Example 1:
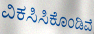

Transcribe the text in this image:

ವಿಕಸಿಸಿಕೊಂಡಿವೆ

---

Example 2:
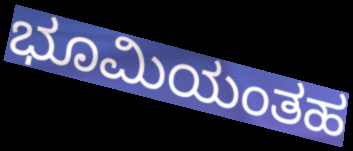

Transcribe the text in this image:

ಭೂಮಿಯಂತಹ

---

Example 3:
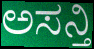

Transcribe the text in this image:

ಅಸನ್ತಿ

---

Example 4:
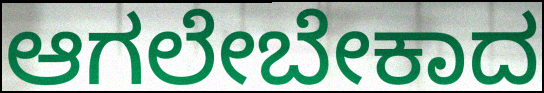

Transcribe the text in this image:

ಆಗಲೇಬೇಕಾದ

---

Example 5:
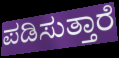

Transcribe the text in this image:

ಪಡಿಸುತ್ತಾರೆ